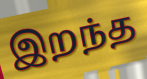
இறந்த